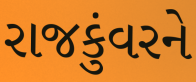
રાજકુંવરને